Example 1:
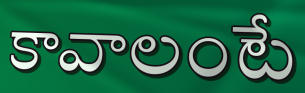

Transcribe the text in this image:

కావాలంటే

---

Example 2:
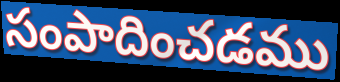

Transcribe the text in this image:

సంపాదించడము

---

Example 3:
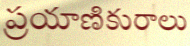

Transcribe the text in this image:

ప్రయాణికురాలు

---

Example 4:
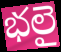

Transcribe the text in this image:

భలై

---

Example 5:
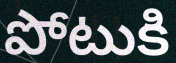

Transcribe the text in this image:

పోటుకి